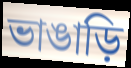
ভাঙাড়ি